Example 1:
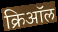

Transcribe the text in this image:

क्रिऑल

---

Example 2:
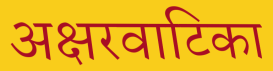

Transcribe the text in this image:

अक्षरवाटिका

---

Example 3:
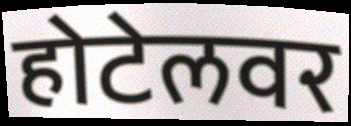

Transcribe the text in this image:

होटेलवर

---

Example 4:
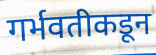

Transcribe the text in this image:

गर्भवतीकडून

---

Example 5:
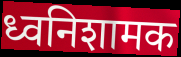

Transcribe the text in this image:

ध्वनिशामक